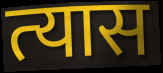
त्‍यास